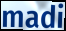
madi